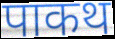
पाकथ